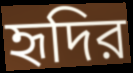
হৃদির